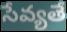
సేవ్యతే